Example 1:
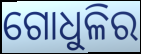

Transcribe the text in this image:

ଗୋଧୁଳିର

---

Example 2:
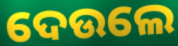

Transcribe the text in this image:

ଦେଉଲେ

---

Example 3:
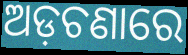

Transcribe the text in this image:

ଅଡ଼ଚଣାରେ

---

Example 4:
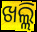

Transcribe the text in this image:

ଖଲ୍ଲି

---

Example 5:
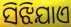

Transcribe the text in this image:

ସିଝିଯାଏ